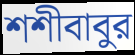
শশীবাবুর